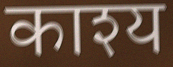
काश्य